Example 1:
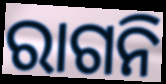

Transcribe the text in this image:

ରାଗନି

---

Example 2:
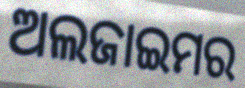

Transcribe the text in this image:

ଅଲଜାଇମର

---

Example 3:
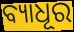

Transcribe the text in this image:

ବ୍ୟାଧୂର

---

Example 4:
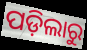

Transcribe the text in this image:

ପଡ଼ିଲାରୁ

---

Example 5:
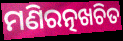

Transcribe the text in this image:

ମଣିରତ୍ନଖଚିତ